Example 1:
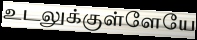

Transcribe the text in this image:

உடலுக்குள்ளேயே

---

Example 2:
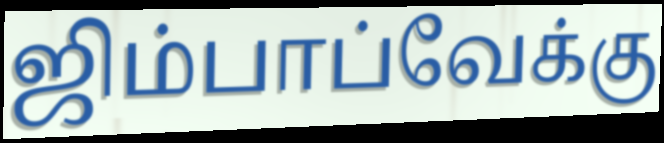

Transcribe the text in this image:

ஜிம்பாப்வேக்கு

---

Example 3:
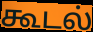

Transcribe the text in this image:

கூடல்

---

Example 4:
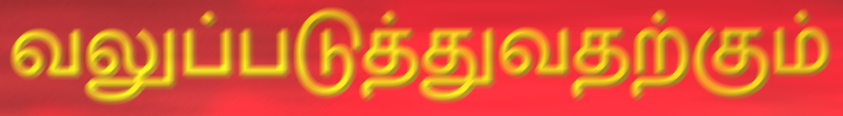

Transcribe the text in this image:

வலுப்படுத்துவதற்கும்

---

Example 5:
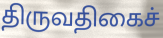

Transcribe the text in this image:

திருவதிகைச்